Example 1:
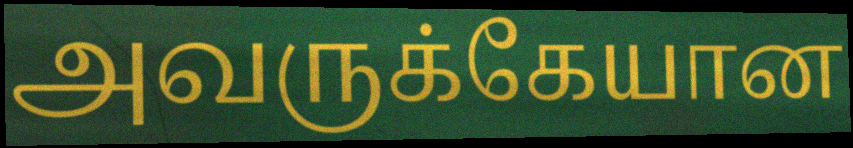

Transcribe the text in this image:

அவருக்கேயான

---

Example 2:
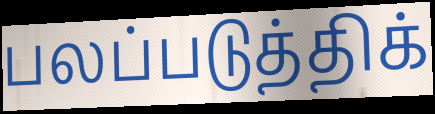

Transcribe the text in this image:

பலப்படுத்திக்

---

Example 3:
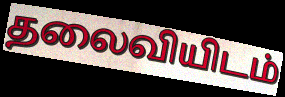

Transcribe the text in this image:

தலைவியிடம்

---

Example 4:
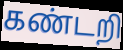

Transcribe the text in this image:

கண்டறி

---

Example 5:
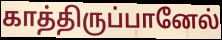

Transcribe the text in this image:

காத்திருப்பானேல்